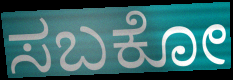
ಸಬಕೋ